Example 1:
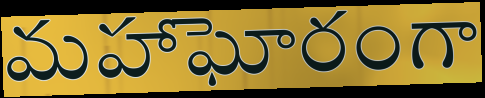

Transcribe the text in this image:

మహాఘోరంగా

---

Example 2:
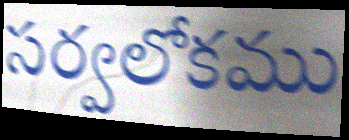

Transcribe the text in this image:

సర్వలోకము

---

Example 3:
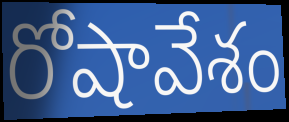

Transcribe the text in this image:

రోషావేశం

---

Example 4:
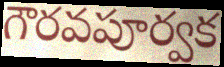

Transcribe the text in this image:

గౌరవపూర్వక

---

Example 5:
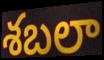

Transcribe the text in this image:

శబలా